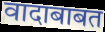
वादाबाबत